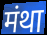
मंथा